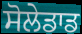
ਸੋਲੇਡਾਡ